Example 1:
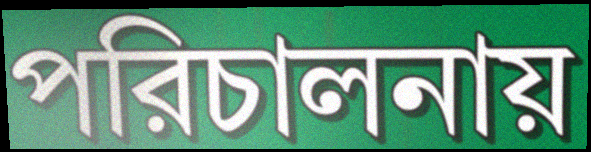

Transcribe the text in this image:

পরিচালনায়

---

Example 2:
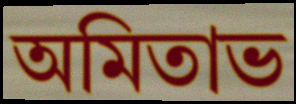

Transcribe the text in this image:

অমিতাভ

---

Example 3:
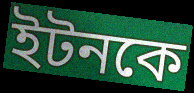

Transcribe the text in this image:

ইটনকে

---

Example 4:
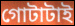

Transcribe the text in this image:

গোটাটাই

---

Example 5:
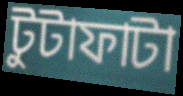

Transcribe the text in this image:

টুটাফাটা